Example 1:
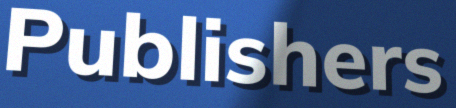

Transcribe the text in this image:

Publishers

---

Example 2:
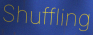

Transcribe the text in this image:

Shuffling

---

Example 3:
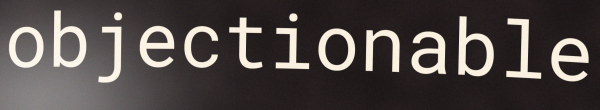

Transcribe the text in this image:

objectionable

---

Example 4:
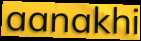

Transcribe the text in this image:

aanakhi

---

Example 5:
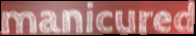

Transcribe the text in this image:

manicured